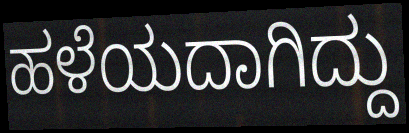
ಹಳೆಯದಾಗಿದ್ದು